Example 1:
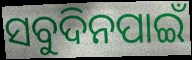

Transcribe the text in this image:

ସବୁଦିନପାଇଁ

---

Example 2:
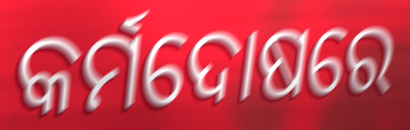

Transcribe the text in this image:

କର୍ମଦୋଷରେ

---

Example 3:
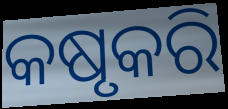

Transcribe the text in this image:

କଷୃକରି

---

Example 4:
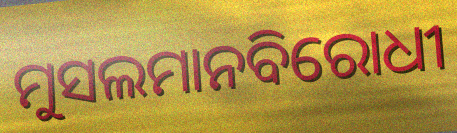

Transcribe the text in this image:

ମୁସଲମାନବିରୋଧୀ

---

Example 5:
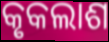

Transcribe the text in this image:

କୃକଲାଶ